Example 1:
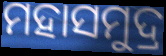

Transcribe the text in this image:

ମହାସମୁଦ୍ର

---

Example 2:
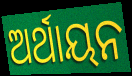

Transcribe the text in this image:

ଅର୍ଥାୟନ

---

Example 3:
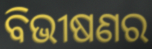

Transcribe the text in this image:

ବିଭୀଷଣର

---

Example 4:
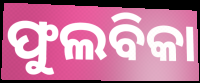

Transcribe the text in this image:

ଫୁଲବିକା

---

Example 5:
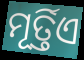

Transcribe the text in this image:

ମୂର୍ତ୍ତିଏ